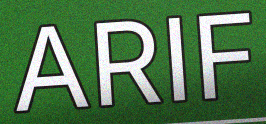
ARIF